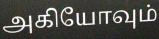
அகியோவும்